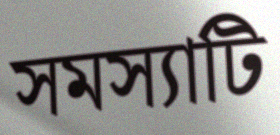
সমস্যাটি